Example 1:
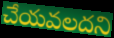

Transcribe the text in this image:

చేయవలదని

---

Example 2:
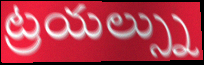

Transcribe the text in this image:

ట్రయల్స్ను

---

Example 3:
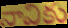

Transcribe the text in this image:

నావికు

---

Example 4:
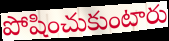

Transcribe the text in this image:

పోషించుకుంటారు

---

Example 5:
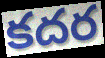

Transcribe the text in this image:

కదర